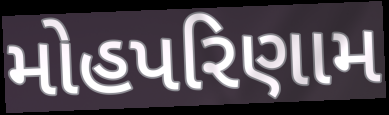
મોહપરિણામ